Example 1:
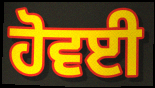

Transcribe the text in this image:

ਹੋਵਈ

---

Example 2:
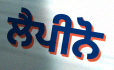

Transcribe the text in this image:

ਲੈਪੀਨੋ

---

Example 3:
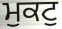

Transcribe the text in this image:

ਮੁਕਟੁ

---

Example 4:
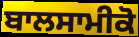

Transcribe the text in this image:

ਬਾਲਸਾਮੀਕੋ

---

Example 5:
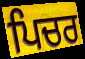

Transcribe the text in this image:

ਪਿਚਰ